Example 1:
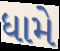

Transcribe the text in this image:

ધામે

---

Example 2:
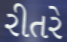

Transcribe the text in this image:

રીતરે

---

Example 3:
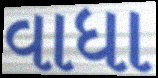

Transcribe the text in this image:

વાધા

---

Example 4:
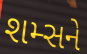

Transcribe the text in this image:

શમ્સને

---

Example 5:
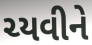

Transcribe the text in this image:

ચ્યવીને